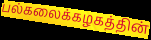
பல்கலைக்கழகத்தின்